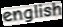
english